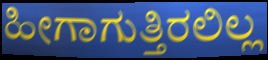
ಹೀಗಾಗುತ್ತಿರಲಿಲ್ಲ